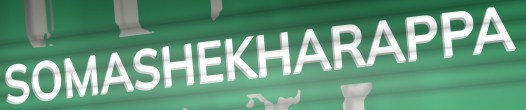
SOMASHEKHARAPPA